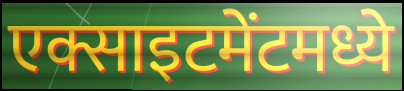
एक्साइटमेंटमध्ये